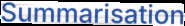
Summarisation